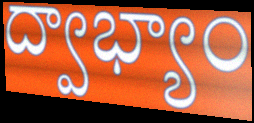
ద్వాభ్యాం